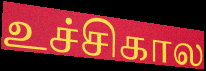
உச்சிகால